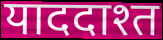
याददाश्त